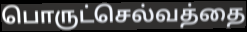
பொருட்செல்வத்தை